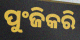
ପୁଂଜିକରି